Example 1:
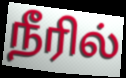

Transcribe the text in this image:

நீரில்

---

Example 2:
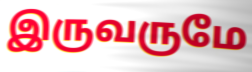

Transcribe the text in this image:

இருவருமே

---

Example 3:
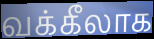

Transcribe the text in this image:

வக்கீலாக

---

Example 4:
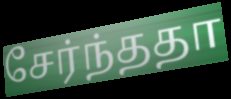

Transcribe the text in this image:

சேர்ந்ததா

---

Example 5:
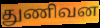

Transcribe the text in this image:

துணிவன